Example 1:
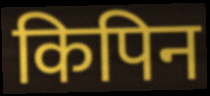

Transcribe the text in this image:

किपिन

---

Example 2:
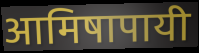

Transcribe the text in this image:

आमिषापायी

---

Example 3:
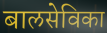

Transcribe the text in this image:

बालसेविका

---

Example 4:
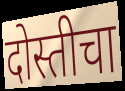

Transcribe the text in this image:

दोस्तीचा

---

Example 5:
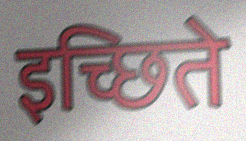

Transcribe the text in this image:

इच्छिते